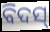
ବିଦସ୍